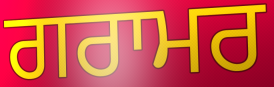
ਗਰਾਮਰ